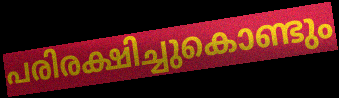
പരിരക്ഷിച്ചുകൊണ്ടും